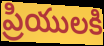
ప్రియులకి